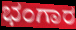
ಭಂಗಾರ